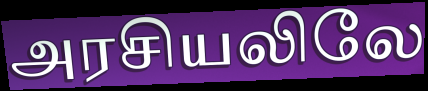
அரசியலிலே